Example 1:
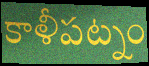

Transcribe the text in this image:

కాళీపట్నం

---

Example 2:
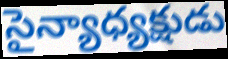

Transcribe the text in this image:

సైన్యాధ్యక్షుడు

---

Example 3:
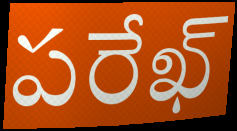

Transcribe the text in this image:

పరేఖ్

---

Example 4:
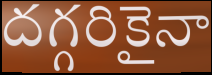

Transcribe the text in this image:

దగ్గరికైనా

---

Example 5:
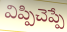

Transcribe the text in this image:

విప్పిచెప్పే